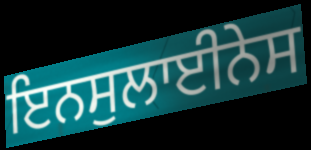
ਇਨਸੁਲਾਈਨੇਸ